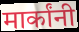
मार्कांनी